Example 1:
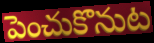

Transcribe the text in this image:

పెంచుకొనుట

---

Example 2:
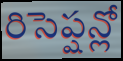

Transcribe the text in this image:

రిసెప్షన్లో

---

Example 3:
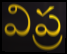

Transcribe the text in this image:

విప్ర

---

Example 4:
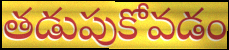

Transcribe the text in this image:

తడుపుకోవడం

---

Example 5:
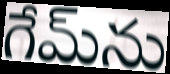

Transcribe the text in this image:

గేమ్‌ను